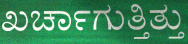
ಖರ್ಚಾಗುತ್ತಿತ್ತು